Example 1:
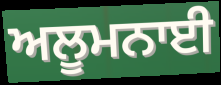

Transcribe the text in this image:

ਅਲੂਮਨਾਈ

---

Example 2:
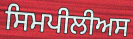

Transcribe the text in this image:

ਸਿਮਪੀਲੀਅਸ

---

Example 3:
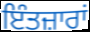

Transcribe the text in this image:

ਇੰਤਜ਼ਾਰਾਂ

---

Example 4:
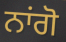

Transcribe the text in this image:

ਨਾਂਗੋ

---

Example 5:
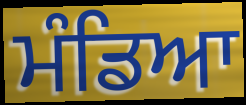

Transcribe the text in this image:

ਮੰਡਿਆ